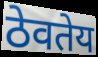
ठेवतेय